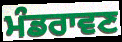
ਮੰਡਰਾਵਣ